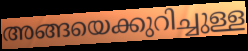
അങ്ങയെക്കുറിച്ചുള്ള